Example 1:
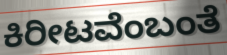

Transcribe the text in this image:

ಕಿರೀಟವೆಂಬಂತೆ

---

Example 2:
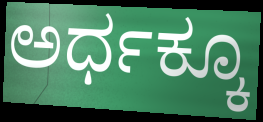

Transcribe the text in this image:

ಅರ್ಧಕ್ಕೂ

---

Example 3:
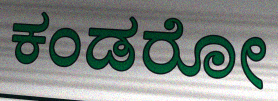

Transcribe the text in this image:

ಕಂಡರೋ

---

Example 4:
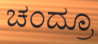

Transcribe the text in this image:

ಚಂದ್ರೂ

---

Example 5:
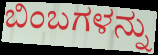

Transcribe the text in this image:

ಬಿಂಬಗಳನ್ನು